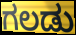
ಗಲಡು